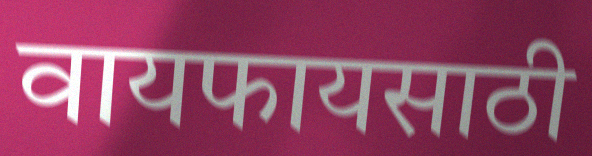
वायफायसाठी